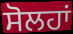
ਸੋਲਹਾਂ